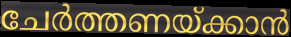
ചേർത്തണയ്ക്കാൻ